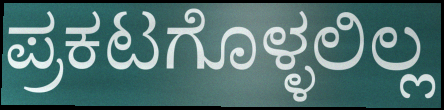
ಪ್ರಕಟಗೊಳ್ಳಲಿಲ್ಲ